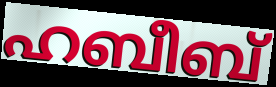
ഹബീബ്